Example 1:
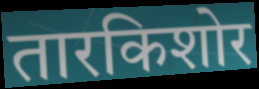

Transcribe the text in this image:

तारकिशोर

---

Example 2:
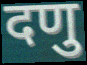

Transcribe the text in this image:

दणु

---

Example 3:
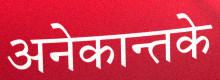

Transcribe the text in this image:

अनेकान्तके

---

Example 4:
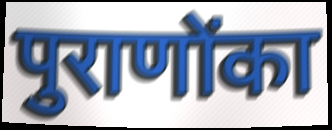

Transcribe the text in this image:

पुराणोंका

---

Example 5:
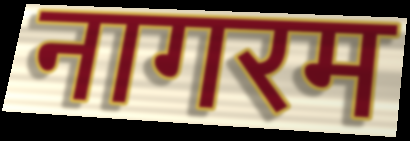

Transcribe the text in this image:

नागरम